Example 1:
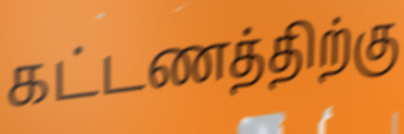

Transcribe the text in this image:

கட்டணத்திற்கு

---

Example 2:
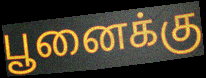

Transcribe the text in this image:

பூனைக்கு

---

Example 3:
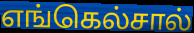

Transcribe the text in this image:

எங்கெல்சால்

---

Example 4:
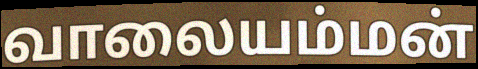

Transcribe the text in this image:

வாலையம்மன்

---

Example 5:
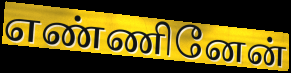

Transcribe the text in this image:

எண்ணினேன்